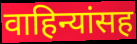
वाहिन्यांसह